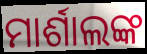
ମାର୍ଶାଲଙ୍କ